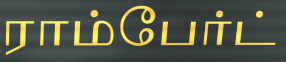
ராம்பேர்ட்